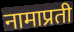
नामाप्रती